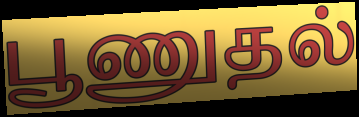
பூணுதல்